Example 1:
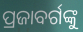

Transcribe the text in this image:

ପ୍ରଜାବର୍ଗଙ୍କୁ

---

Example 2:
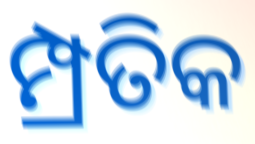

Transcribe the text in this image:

ମ୍ପ୍ରତିକ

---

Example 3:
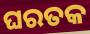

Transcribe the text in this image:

ଘରତକ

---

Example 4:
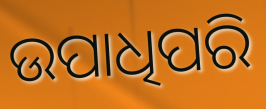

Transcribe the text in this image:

ଉପାଧିପରି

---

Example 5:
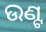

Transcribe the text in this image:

ଉଣ୍ଟ